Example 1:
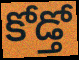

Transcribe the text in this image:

కోడ్తో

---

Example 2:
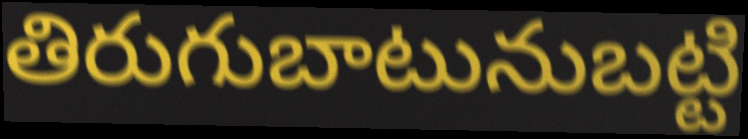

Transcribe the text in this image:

తిరుగుబాటునుబట్టి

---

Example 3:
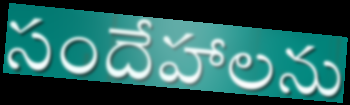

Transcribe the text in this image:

సందేహాలను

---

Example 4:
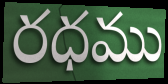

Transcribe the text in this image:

రధము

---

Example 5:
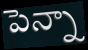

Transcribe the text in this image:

పెన్నా